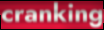
cranking